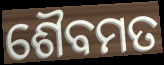
ଶୈବମତ